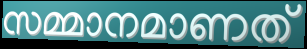
സമ്മാനമാണത്